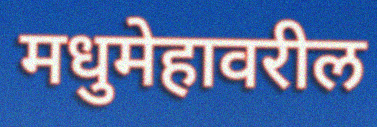
मधुमेहावरील